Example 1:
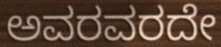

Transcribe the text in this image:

ಅವರವರದೇ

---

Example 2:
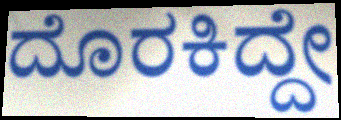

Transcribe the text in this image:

ದೊರಕಿದ್ದೇ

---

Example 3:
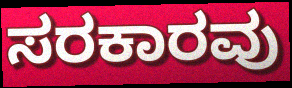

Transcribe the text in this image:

ಸರಕಾರವು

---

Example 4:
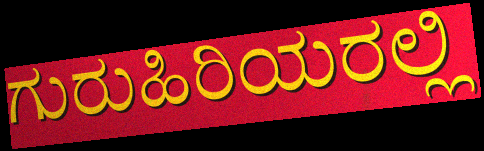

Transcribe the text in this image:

ಗುರುಹಿರಿಯರಲ್ಲಿ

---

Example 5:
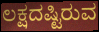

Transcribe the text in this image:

ಲಕ್ಷದಷ್ಟಿರುವ